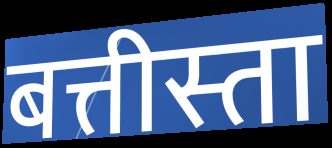
बत्तीस्ता